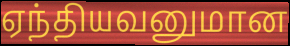
ஏந்தியவனுமான